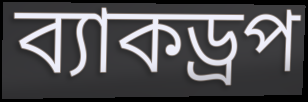
ব্যাকড্রপ